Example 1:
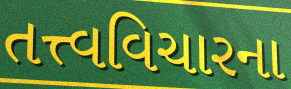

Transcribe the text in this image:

તત્ત્વવિચારના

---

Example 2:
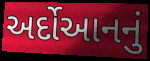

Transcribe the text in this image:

અર્દોઆનનું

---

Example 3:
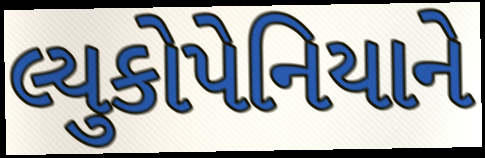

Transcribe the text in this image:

લ્યુકોપેનિયાને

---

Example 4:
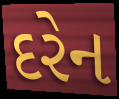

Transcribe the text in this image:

દરેન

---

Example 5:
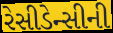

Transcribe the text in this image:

રેસીડેન્સીની